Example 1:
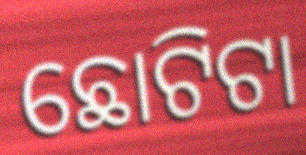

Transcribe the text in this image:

ଛୋଟିଟା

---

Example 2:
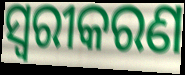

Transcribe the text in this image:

ସ୍ୱରୀକରଣ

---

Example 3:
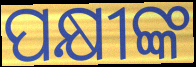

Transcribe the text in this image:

ପକ୍ଷୀଙ୍କ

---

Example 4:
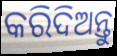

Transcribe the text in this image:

କରିଦିଅନ୍ତୁ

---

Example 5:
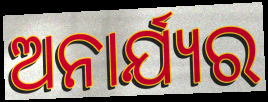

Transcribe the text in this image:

ଅନାର୍ଯ୍ୟର